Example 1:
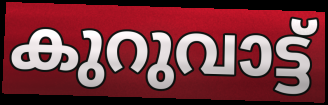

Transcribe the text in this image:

കുറുവാട്ട്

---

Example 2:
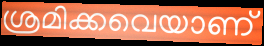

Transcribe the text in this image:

ശ്രമിക്കവെയാണ്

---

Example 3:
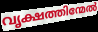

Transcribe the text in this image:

വൃക്ഷത്തിന്മേൽ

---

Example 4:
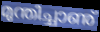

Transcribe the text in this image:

മുന്തിച്ചാണു്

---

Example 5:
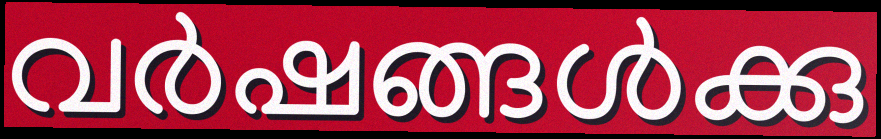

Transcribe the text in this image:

വർഷങ്ങൾക്കു